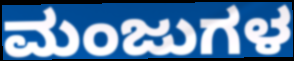
ಮಂಜುಗಳ